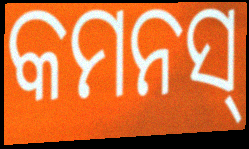
କମନସ୍